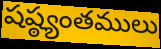
షష్ఠ్యంతములు